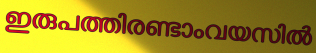
ഇരുപത്തിരണ്ടാംവയസിൽ